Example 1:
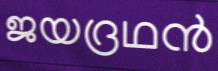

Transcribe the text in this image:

ജയദ്രഥൻ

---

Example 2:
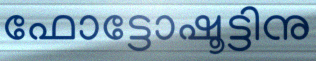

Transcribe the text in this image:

ഫോട്ടോഷൂട്ടിനു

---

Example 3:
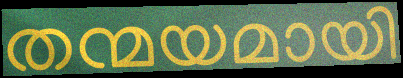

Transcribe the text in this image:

തന്മയമായി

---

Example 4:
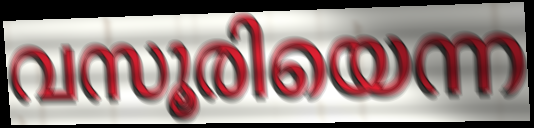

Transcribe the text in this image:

വസൂരിയെന്ന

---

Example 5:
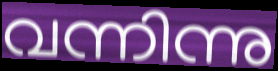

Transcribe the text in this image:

വന്നിന്നു